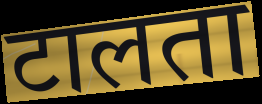
टालता